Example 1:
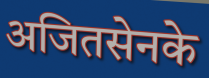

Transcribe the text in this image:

अजितसेनके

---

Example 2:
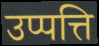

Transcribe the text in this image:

उप्पत्ति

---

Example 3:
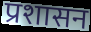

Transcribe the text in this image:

प्रशासन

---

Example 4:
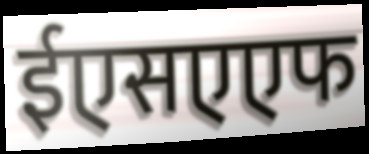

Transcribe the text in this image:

ईएसएएफ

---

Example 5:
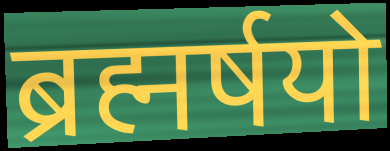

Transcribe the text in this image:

ब्रह्मर्षयो